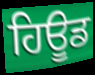
ਹਿਊਡ